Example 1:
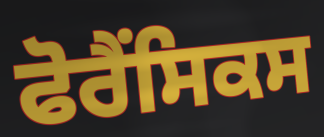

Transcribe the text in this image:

ਫੋਰੈਂਸਿਕਸ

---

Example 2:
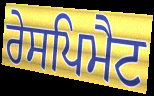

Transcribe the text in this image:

ਰੇਸਪਿਮੈਟ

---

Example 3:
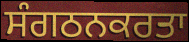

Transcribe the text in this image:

ਸੰਗਠਨਕਰਤਾ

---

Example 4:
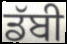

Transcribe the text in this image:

ਡੱਬੀ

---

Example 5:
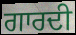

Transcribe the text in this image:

ਗਾਰਦੀ